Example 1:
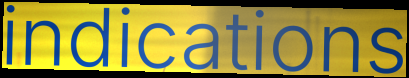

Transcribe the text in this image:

indications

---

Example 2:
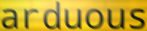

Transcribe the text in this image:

arduous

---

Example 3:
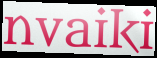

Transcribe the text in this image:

nvaiki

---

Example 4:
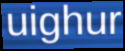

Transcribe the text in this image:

uighur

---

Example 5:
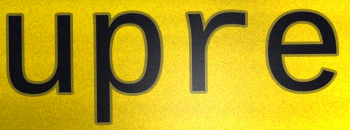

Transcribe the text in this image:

upre